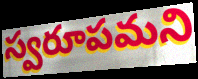
స్వరూపమని